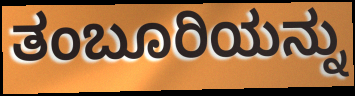
ತಂಬೂರಿಯನ್ನು